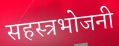
सहस्त्रभोजनी